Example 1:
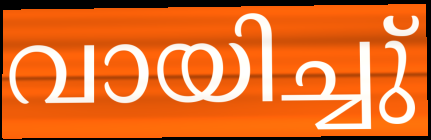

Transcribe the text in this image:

വായിച്ചു്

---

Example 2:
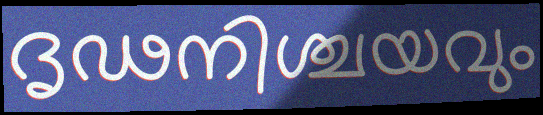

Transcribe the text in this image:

ദൃഢനിശ്ചയവും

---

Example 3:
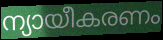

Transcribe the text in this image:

ന്യായീകരണം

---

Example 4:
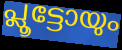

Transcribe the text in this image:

പ്ലൂട്ടോയും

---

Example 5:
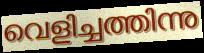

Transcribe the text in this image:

വെളിച്ചത്തിന്നു